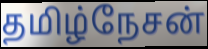
தமிழ்நேசன்